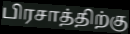
பிரசாத்திற்கு